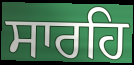
ਸਾਰਹਿ